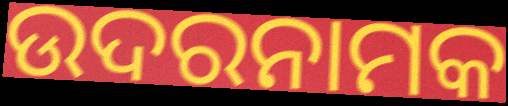
ଉଦରନାମକ